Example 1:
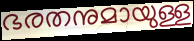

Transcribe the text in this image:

ഭരതനുമായുള്ള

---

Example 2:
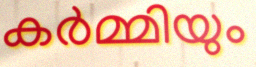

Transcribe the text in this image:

കർമ്മിയും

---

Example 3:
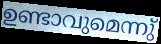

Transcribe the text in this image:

ഉണ്ടാവുമെന്നു്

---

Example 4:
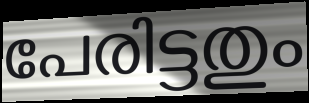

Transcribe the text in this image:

പേരിട്ടതും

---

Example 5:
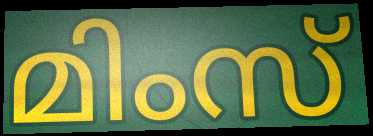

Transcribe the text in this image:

മിംസ്